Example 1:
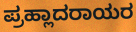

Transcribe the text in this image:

ಪ್ರಹ್ಲಾದರಾಯರ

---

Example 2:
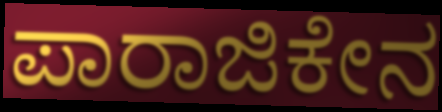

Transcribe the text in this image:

ಪಾರಾಜಿಕೇನ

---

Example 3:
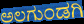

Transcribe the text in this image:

ಅಲಗುಂಡಗಿ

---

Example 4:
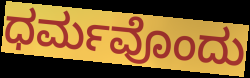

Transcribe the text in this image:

ಧರ್ಮವೊಂದು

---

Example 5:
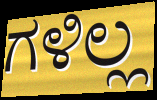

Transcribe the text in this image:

ಗಳಿಲ್ಲ